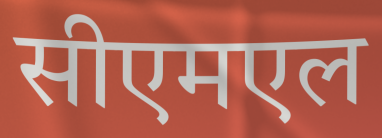
सीएमएल